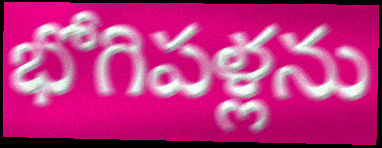
భోగిపళ్లను